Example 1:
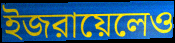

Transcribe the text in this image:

ইজরায়েলেও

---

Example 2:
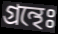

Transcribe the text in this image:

গ্রন্থেঃ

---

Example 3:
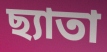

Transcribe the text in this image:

ছ্যাতা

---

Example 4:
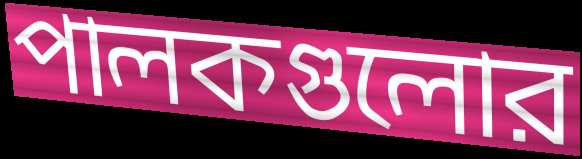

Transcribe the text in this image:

পালকগুলোর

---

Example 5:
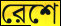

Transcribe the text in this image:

রেশে